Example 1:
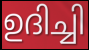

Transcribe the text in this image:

ഉദിച്ചി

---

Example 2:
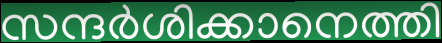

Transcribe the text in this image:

സന്ദർശിക്കാനെത്തി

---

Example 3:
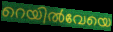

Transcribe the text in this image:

റെയിൽവേയെ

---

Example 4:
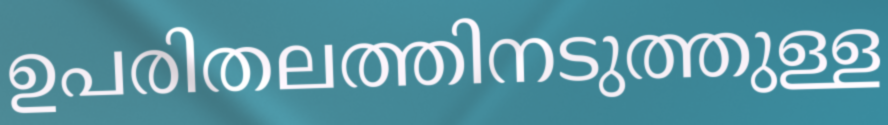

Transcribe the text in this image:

ഉപരിതലത്തിനടുത്തുള്ള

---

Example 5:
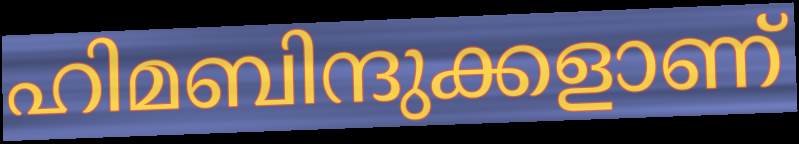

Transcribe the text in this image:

ഹിമബിന്ദുക്കളാണ്